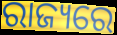
ରାଜ୍ଯରେ